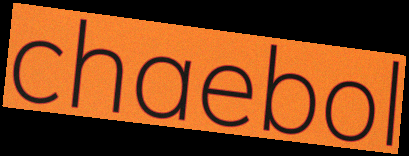
chaebol